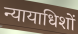
न्यायाधिशों